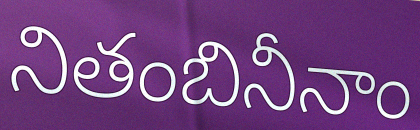
నితంబినీనాం